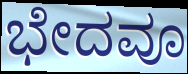
ಭೇದವೂ